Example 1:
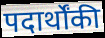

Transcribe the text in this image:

पदार्थोंकी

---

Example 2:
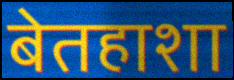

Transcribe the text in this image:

बेतहाशा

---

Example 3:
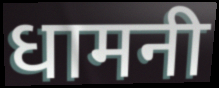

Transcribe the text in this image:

धामनी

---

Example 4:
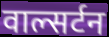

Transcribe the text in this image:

वाल्सर्टन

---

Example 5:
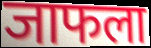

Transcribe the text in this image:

जाफला